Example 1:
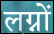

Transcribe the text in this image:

लग्नों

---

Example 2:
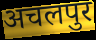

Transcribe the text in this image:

अचलपुर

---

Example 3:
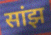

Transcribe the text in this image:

सांझ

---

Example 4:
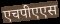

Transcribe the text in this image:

एचपीएएस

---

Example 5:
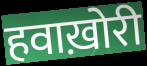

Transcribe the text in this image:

हवाख़ोरी